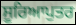
ਸੂਰਿਆਪੁਤਰ